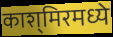
काश्मिरमध्ये